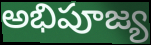
అభిపూజ్య